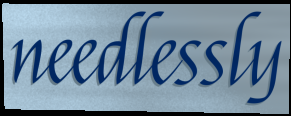
needlessly